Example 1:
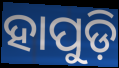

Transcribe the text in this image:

ହାପୁଡ଼ି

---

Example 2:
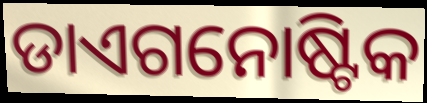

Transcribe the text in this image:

ଡାଏଗନୋଷ୍ଟିକ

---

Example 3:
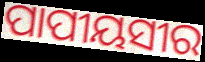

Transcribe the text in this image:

ପାପୀୟସୀର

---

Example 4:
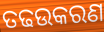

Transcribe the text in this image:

ତଢଉକରଣ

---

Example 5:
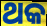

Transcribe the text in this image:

ଥକ